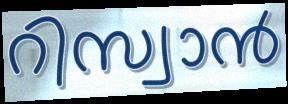
റിസ്വാൻ